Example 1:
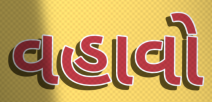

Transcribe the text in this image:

વહાવો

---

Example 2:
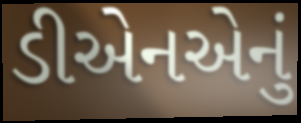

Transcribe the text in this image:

ડીએનએનું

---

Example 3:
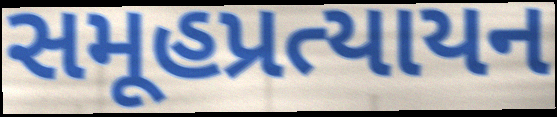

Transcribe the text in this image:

સમૂહપ્રત્યાયન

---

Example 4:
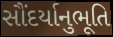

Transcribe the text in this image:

સૌંદર્યાનુભૂતિ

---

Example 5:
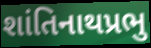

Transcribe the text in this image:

શાંતિનાથપ્રભુ